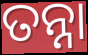
ତନ୍ନା